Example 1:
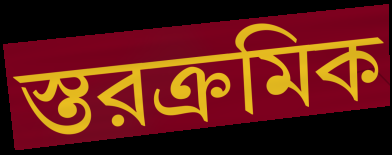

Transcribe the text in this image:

স্তরক্রমিক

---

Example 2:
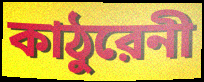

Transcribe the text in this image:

কাঠুরেনী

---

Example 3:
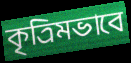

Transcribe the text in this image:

কৃত্রিমভাবে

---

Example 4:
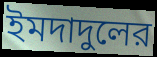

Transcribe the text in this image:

ইমদাদুলের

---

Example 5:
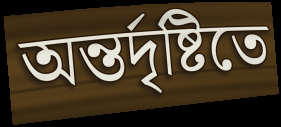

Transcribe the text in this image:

অন্তর্দৃষ্টিতে